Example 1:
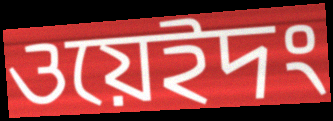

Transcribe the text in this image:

ওয়েইদং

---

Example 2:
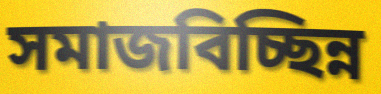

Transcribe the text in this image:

সমাজবিচ্ছিন্ন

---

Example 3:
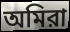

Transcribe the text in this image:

অমিরা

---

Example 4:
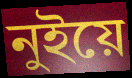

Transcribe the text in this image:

নুইয়ে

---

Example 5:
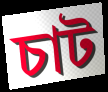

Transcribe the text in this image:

চাট